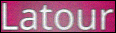
Latour